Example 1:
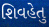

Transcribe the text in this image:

શિવહેતુ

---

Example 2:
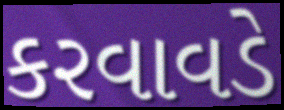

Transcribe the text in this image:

કરવાવડે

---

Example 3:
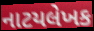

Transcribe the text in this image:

નાટયલેખક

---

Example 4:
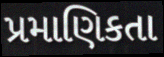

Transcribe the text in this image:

પ્રમાણિકતા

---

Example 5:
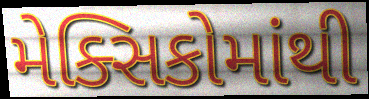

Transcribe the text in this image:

મેક્સિકોમાંથી